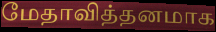
மேதாவித்தனமாக